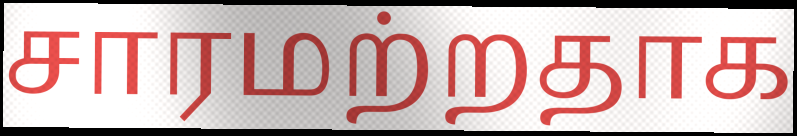
சாரமற்றதாக